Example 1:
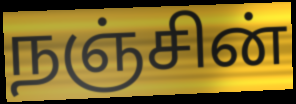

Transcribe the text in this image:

நஞ்சின்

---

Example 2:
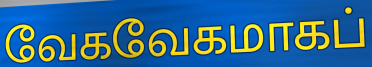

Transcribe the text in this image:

வேகவேகமாகப்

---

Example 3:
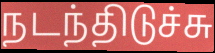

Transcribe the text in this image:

நடந்திடுச்சு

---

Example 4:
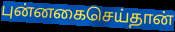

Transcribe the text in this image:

புன்னகைசெய்தான்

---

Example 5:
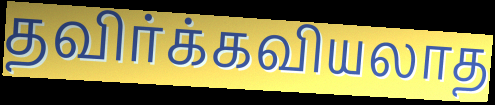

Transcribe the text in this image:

தவிர்க்கவியலாத